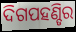
ଦିଗପହଣ୍ଡିର